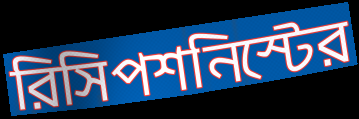
রিসিপশনিস্টের